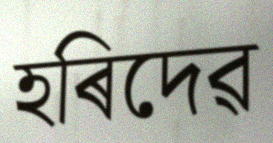
হৰিদেৱ